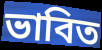
ভাবিত